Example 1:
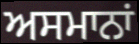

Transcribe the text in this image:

ਅਸਮਾਨਾਂ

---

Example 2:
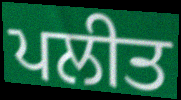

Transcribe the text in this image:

ਪਲੀਤ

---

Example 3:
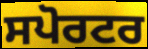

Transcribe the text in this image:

ਸਪੋਰਟਰ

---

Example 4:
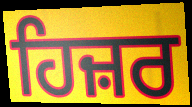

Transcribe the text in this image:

ਹਿਜ਼ਰ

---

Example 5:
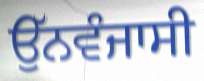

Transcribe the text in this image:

ਉੱਨਵੰਜਾਸੀ